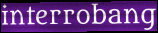
interrobang